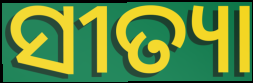
ସୀତ୍ୟା